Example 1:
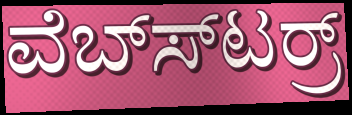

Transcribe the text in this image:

ವೆಬ್ಸ್‍ಟರ್ರ್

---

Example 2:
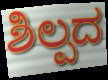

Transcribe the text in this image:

ಶಿಲ್ಪದ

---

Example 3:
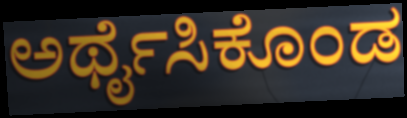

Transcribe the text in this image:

ಅರ್ಥೈಸಿಕೊಂಡ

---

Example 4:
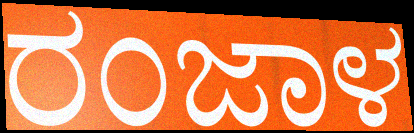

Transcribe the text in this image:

ರಂಜಾಳ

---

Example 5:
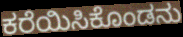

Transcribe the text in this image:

ಕರೆಯಿಸಿಕೊಂಡನು